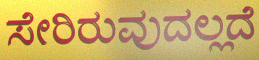
ಸೇರಿರುವುದಲ್ಲದೆ